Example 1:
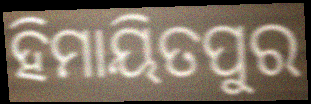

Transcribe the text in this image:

ହିମାୟିତପୁର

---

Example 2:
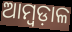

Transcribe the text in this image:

ଆମ୍ବଡ଼ାଳ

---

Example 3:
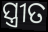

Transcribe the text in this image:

ସ୍ତ୍ରୀତ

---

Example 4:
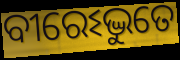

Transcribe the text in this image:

ବୀରେଽଦ୍ଭୁତେ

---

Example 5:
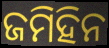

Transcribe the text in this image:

ଜମିହିନ